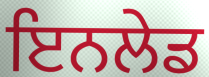
ਇਨਲੇਡ